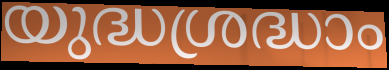
യുദ്ധശ്രദ്ധാം